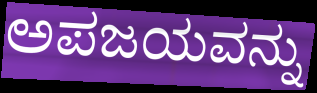
ಅಪಜಯವನ್ನು